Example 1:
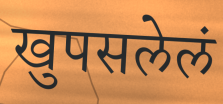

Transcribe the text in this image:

खुपसलेलं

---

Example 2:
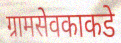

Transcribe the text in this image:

ग्रामसेवकाकडे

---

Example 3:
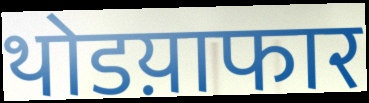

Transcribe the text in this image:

थोडय़ाफार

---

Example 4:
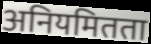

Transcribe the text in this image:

अनियमितता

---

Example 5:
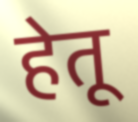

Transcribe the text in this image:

हेतू